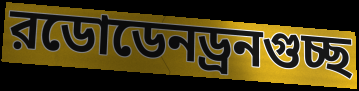
রডোডেনড্রনগুচ্ছ